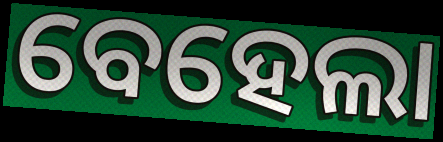
ବେହେଲା